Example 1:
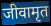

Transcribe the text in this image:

जीवामृत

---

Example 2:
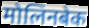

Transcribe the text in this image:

मोलिनबेक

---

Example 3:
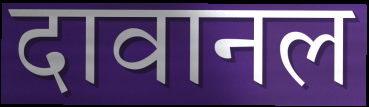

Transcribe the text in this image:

दावानल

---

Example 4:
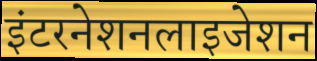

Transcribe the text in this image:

इंटरनेशनलाइजेशन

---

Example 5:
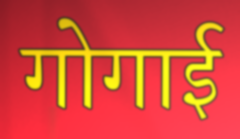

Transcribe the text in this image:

गोगाई